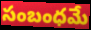
సంబంధమే